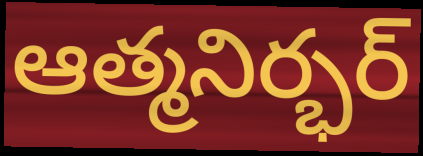
ఆత్మనిర్భర్